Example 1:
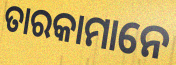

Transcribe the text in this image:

ତାରକାମାନେ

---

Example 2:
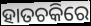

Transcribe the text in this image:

ହାତଚକିରେ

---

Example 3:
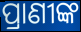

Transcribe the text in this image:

ପ୍ରାଣୀଙ୍କ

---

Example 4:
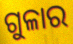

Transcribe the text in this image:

ଗୁଳାର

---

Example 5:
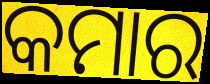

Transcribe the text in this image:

କମାର